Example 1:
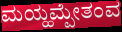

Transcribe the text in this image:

ಮಯ್ಹಮ್ಪೇತಂವ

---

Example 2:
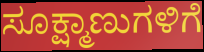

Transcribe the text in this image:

ಸೂಕ್ಷ್ಮಾಣುಗಳಿಗೆ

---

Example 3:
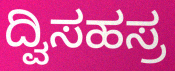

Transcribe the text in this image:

ದ್ವಿಸಹಸ್ರ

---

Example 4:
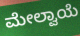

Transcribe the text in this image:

ಮೇಲ್ವಾಯೆ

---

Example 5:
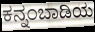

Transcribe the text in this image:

ಕನ್ನಂಬಾಡಿಯ